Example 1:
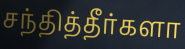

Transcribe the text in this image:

சந்தித்தீர்களா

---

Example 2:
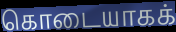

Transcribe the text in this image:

கொடையாகக்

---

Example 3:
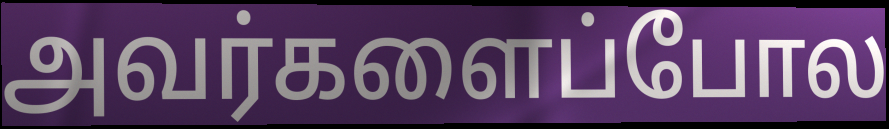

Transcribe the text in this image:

அவர்களைப்போல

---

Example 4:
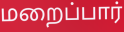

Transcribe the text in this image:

மறைப்பார்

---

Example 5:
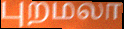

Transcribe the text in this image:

புறமலா